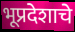
भूप्रदेशाचे